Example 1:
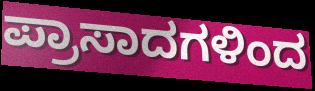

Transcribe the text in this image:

ಪ್ರಾಸಾದಗಳಿಂದ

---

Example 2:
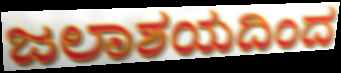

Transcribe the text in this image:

ಜಲಾಶಯದಿಂದ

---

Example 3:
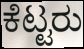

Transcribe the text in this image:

ಕೆಟ್ಟರು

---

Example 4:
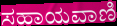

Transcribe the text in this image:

ಸಹಾಯವಾಣಿ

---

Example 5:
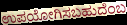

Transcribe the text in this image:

ಉಪಯೋಗಿಸಬಹುದೆಂಬ